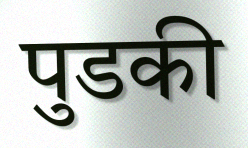
पुडकी